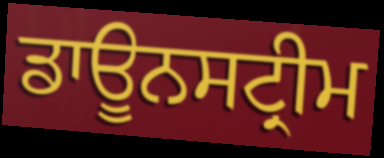
ਡਾਊਨਸਟ੍ਰੀਮ